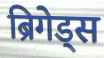
ब्रिगेड्स